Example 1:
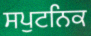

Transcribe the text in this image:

ਸਪੁਟਨਿਕ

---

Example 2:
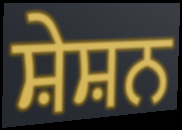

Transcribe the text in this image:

ਸ਼ੇਸ਼ਨ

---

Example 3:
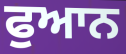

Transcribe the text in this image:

ਫੁਆਨ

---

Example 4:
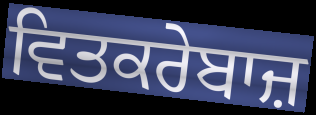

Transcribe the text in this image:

ਵਿਤਕਰੇਬਾਜ਼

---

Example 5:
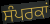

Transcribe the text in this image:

ਸੰਪਰਕਾਂ